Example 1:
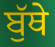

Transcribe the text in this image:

ਬੁੱਥੇ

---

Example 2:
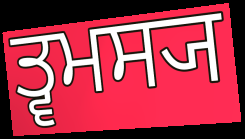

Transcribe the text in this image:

ਤ੍ਵਮਸ੍ਯ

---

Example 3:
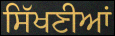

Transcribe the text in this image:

ਸਿੱਖਣੀਆਂ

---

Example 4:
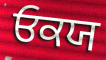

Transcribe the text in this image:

ਓਕਯ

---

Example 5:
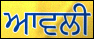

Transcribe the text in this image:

ਆਵਲੀ